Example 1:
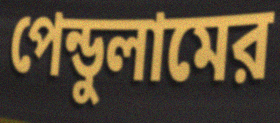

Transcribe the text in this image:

পেন্ডুলামের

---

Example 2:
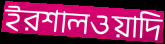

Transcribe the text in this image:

ইরশালওয়াদি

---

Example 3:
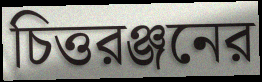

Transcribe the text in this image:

চিত্তরঞ্জনের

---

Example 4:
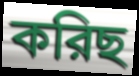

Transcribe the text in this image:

করিছ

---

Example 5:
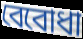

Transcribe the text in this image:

বেবোধা